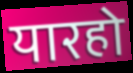
यारहो